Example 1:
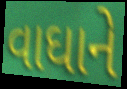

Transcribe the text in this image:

વાઘાને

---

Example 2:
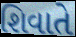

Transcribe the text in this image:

શિવાતે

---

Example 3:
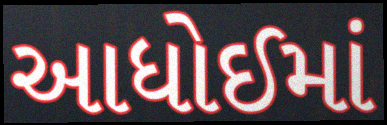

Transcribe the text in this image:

આધોઈમાં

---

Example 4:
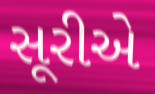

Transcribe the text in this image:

સૂરીએ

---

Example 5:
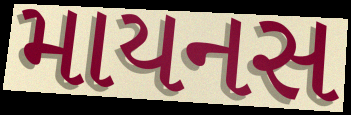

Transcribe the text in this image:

માયનસ